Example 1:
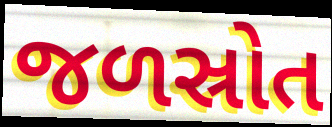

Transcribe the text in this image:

જળસ્રોત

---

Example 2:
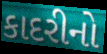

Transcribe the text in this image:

કાદરીનો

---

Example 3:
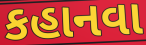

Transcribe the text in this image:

કહાનવા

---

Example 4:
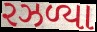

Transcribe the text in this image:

રઝળ્યા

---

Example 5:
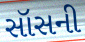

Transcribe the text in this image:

સૉસની